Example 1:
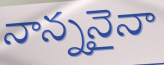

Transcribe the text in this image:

నాన్ననైనా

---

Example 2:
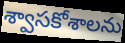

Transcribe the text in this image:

శ్వాసకోశాలను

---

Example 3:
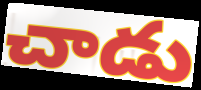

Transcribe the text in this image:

చాడు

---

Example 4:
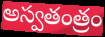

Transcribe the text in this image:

అస్వతంత్రం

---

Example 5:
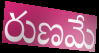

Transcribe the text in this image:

రుణమే